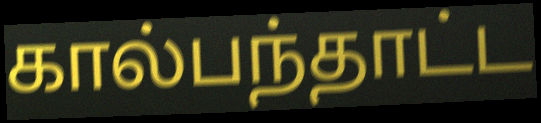
கால்பந்தாட்ட